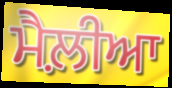
ਮੈਲ਼ੀਆ